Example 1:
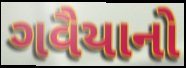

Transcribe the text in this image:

ગવૈયાનો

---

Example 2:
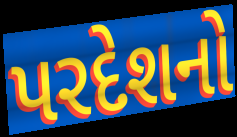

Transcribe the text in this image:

પરદેશનો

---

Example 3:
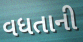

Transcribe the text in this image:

વધતાની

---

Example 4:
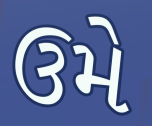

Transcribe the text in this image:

ઉમે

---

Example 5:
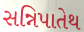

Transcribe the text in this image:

સન્નિપાતેથ